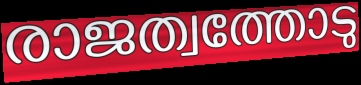
രാജത്വത്തോടു